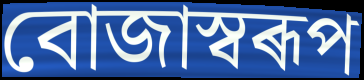
বোজাস্বৰূপ